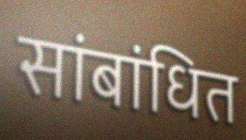
सांबांधित